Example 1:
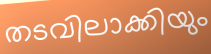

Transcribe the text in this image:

തടവിലാക്കിയും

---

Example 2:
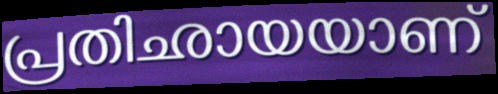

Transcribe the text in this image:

പ്രതിഛായയാണ്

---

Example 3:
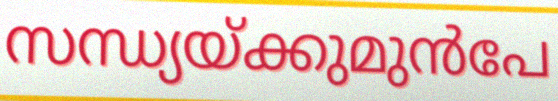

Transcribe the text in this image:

സന്ധ്യയ്ക്കുമുൻപേ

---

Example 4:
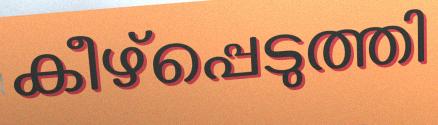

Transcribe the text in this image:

കീഴ്പ്പെടുത്തി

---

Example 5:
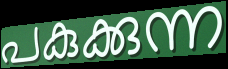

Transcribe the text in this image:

പകുക്കുന്ന